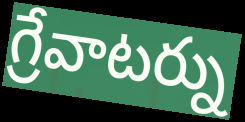
గ్రేవాటర్ను